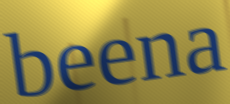
beena